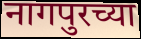
नागपुरच्या